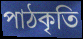
পাঠকৃতি